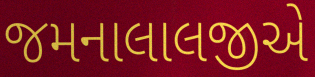
જમનાલાલજીએ